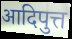
आदिपुत्त